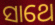
ସାଥେ